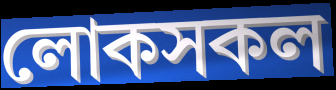
লোকসকল